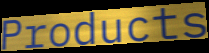
Products